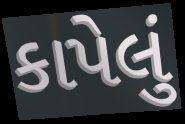
કાપેલું